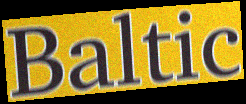
Baltic